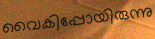
വൈകിപ്പോയിരുന്നു